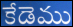
కేడెము